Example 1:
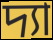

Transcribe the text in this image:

দ্যা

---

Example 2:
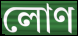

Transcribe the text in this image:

লোণ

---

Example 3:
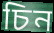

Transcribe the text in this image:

চিন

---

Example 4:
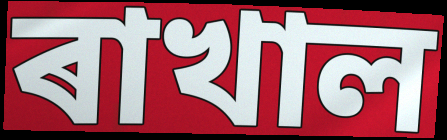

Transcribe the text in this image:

ৰাখাল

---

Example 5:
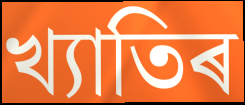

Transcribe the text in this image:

খ্যাতিৰ